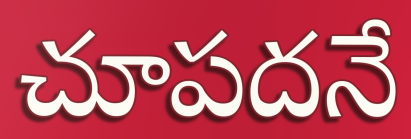
చూపదనే